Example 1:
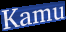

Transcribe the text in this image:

Kamu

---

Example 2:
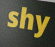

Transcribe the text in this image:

shy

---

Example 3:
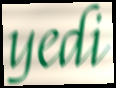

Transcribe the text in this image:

yedi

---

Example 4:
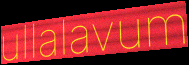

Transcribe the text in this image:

ullalavum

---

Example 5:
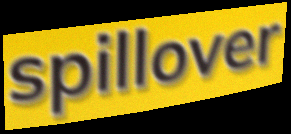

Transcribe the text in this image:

spillover